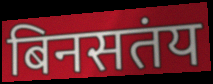
बिनसतंय